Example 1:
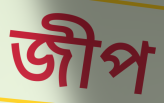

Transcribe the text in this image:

জীপ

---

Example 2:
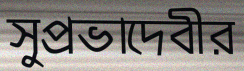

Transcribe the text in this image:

সুপ্রভাদেবীর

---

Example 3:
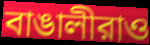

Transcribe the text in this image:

বাঙালীরাও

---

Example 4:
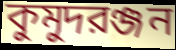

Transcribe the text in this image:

কুমুদরঞ্জন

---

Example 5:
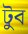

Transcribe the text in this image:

টুব